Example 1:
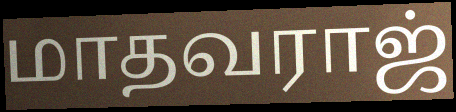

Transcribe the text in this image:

மாதவராஜ்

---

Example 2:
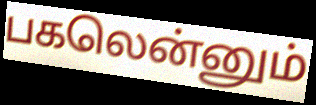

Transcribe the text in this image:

பகலென்னும்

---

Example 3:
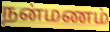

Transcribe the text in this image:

நன்மணம்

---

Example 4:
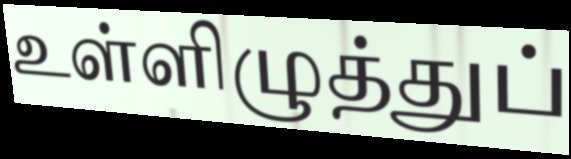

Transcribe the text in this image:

உள்ளிழுத்துப்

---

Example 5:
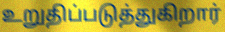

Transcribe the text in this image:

உறுதிப்படுத்துகிறார்